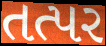
તત્પર